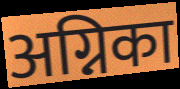
अग्निका